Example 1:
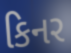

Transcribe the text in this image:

કિનર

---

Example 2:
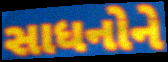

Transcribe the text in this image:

સાધનોને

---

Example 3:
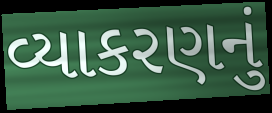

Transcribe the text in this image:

વ્યાકરણનું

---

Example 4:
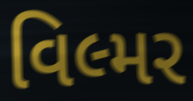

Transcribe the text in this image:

વિલ્મર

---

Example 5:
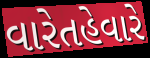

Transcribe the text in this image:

વારેતહેવારે